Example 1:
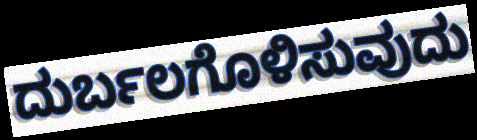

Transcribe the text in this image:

ದುರ್ಬಲಗೊಳಿಸುವುದು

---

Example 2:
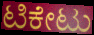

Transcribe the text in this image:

ಟಿಕೇಟು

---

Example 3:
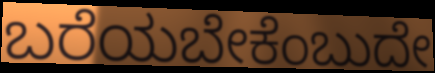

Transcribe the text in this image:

ಬರೆಯಬೇಕೆಂಬುದೇ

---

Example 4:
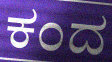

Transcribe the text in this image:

ಕಂದ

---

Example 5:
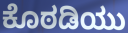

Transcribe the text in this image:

ಕೊಠಡಿಯು